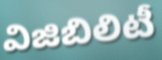
విజిబిలిటీ